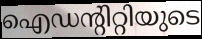
ഐഡന്റിറ്റിയുടെ